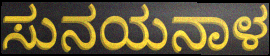
ಸುನಯನಾಳ